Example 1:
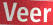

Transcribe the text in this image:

Veer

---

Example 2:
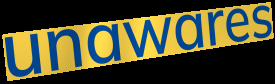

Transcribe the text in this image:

unawares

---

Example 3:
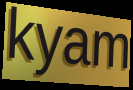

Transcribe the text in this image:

kyam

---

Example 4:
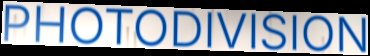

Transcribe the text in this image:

PHOTODIVISION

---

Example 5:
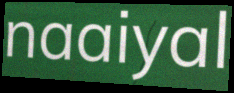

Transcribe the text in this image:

naaiyal